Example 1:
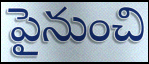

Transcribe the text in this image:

పైనుంచి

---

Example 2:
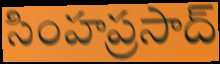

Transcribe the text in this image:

సింహప్రసాద్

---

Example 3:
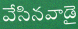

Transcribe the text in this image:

వేసినవాడై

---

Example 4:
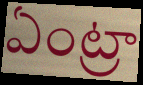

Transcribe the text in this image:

ఏంట్రా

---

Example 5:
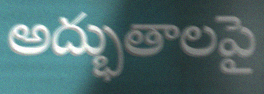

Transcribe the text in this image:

అద్భుతాలపై